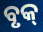
ବୃକ୍